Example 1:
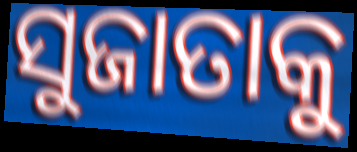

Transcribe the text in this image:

ସୁଜାତାକୁ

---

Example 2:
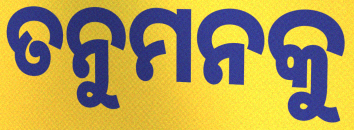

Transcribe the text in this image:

ତନୁମନକୁ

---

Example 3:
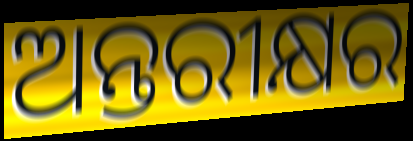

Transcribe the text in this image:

ଅନ୍ତରୀକ୍ଷର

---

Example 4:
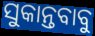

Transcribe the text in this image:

ସୁକାନ୍ତବାବୁ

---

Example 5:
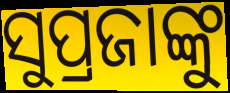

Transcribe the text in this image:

ସୁପ୍ରଜାଙ୍କୁ